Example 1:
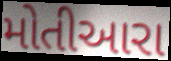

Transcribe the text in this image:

મોતીઆરા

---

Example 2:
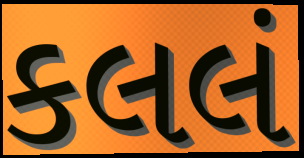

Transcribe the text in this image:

કલલં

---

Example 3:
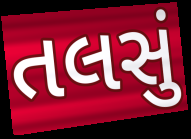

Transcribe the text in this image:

તલસું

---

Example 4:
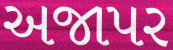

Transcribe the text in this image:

અજાપર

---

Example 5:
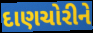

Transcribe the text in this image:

દાણચોરીને